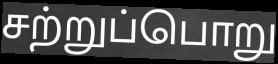
சற்றுப்பொறு